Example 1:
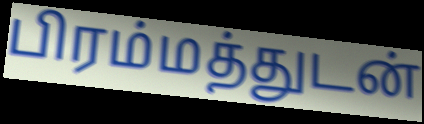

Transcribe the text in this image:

பிரம்மத்துடன்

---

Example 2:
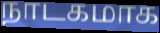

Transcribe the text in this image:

நாடகமாக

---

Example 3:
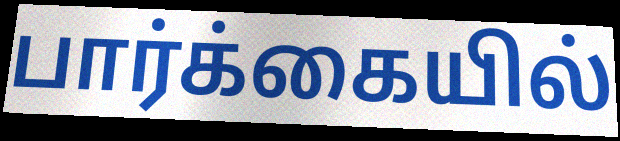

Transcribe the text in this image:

பார்க்கையில்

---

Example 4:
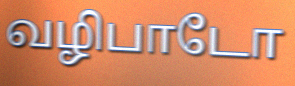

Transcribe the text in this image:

வழிபாடோ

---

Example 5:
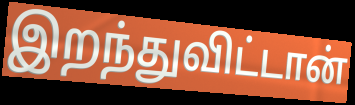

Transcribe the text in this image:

இறந்துவிட்டான்